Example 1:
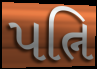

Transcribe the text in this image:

પત્નિ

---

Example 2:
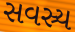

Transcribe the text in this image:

સવસ્ર્ય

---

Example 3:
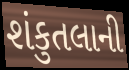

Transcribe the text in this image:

શંકુતલાની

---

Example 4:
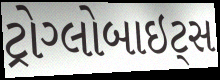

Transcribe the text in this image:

ટ્રોગ્લોબાઇટ્સ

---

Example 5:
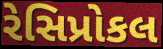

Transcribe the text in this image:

રેસિપ્રોકલ